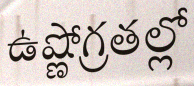
ఉష్ణోగ్రతల్లో